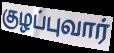
குழப்புவார்